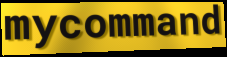
mycommand